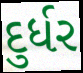
દુર્ધર